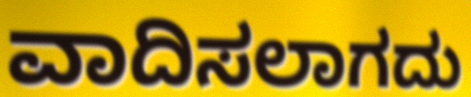
ವಾದಿಸಲಾಗದು